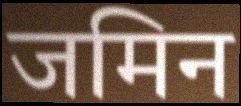
जमिन